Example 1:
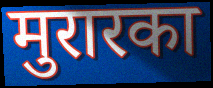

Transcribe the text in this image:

मुरारका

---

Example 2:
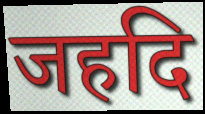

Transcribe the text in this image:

जहदि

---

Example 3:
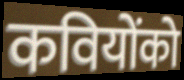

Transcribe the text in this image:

कवियोंको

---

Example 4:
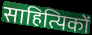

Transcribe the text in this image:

साहित्यिकों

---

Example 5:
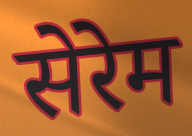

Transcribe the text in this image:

सेरेम